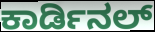
ಕಾರ್ಡಿನಲ್